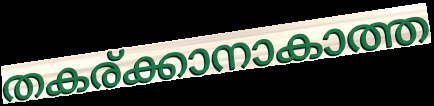
തകര്ക്കാനാകാത്ത